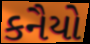
કનૈયો